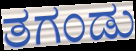
ತಗಂಡು